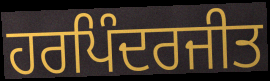
ਹਰਪਿੰਦਰਜੀਤ